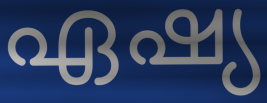
ഏഷ്യ